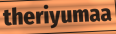
theriyumaa